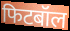
फिटबॉल